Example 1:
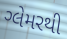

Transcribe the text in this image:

ગ્લેમરથી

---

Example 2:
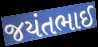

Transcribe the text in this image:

જયંતભાઈ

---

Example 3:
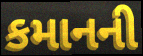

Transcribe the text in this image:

કમાનની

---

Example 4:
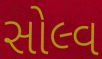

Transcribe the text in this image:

સોલ્વ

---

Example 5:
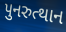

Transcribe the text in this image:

પુનરુત્થાન